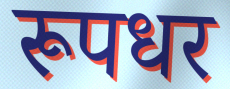
रूपधर